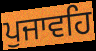
ਪੁਜਾਵਹਿ